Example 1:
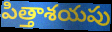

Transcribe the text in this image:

పిత్తాశయపు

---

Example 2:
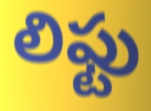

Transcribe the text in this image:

లిఫ్టు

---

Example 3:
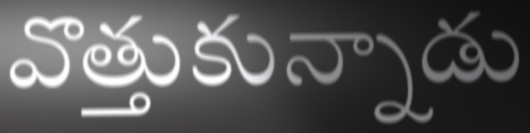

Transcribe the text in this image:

వొత్తుకున్నాడు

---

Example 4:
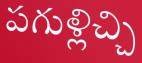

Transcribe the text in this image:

పగుళ్లిచ్చి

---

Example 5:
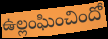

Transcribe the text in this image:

ఉల్లంఘించిందో